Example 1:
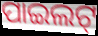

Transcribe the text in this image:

ପାଇଲଟ୍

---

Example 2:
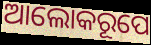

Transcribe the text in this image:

ଆଲୋକରୂପେ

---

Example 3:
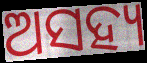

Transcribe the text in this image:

ଅସହ୍ଯ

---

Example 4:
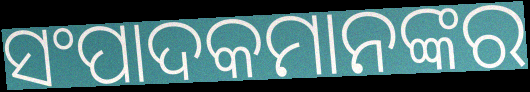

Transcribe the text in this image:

ସଂପାଦକମାନଙ୍କର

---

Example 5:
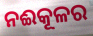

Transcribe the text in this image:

ନଈକୂଳର